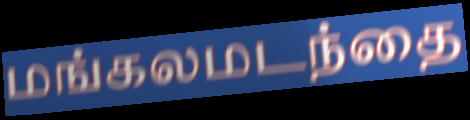
மங்கலமடந்தை